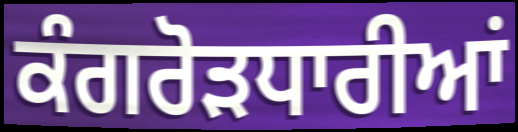
ਕੰਗਰੋੜਧਾਰੀਆਂ